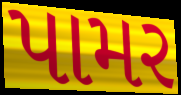
પામર